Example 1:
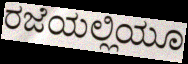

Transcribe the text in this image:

ರಜೆಯಲ್ಲಿಯೂ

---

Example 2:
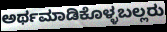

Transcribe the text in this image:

ಅರ್ಥಮಾಡಿಕೊಳ್ಳಬಲ್ಲರು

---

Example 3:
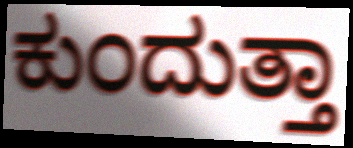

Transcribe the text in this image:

ಕುಂದುತ್ತಾ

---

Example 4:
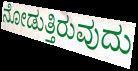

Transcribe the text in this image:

ನೋಡುತ್ತಿರುವುದು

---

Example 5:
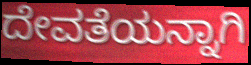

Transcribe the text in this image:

ದೇವತೆಯನ್ನಾಗಿ